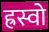
ह्रस्वो